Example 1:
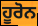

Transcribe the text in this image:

ਹੂਰੋਨ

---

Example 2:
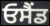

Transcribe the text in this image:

ਓਸੈਂਡ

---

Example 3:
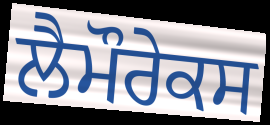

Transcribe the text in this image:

ਲੈਮੌਰੇਕਸ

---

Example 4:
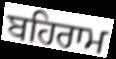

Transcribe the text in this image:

ਬਹਿਰਾਮ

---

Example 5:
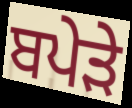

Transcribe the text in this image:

ਬਪੇੜੇ